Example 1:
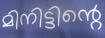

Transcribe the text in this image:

മിനിട്ടിന്റെ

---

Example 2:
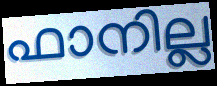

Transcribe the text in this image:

ഫാനില്ല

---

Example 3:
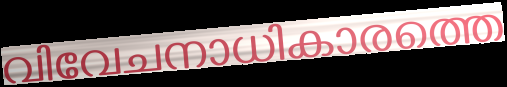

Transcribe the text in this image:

വിവേചനാധികാരത്തെ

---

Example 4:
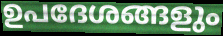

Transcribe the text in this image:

ഉപദേശങ്ങളും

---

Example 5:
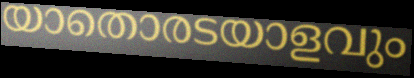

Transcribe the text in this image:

യാതൊരടയാളവും